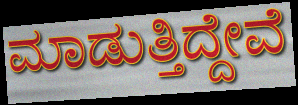
ಮಾಡುತ್ತಿದ್ದೇವೆ